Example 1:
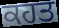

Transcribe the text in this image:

ਕਹਤ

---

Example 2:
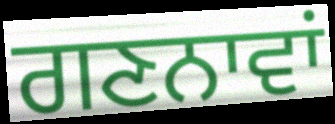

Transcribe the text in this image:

ਗਣਨਾਵਾਂ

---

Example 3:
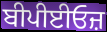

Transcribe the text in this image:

ਬੀਪੀਈਓਜ਼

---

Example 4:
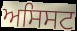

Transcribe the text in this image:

ਅਸਿਸਟ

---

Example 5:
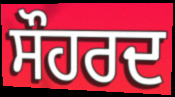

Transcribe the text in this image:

ਸੌਹਰਦ